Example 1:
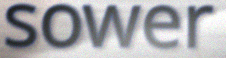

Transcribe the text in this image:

sower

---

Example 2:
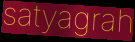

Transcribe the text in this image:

satyagrah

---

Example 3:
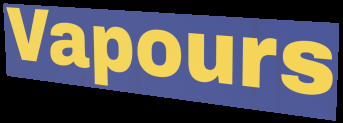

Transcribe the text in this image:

Vapours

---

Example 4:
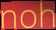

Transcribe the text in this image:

noh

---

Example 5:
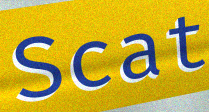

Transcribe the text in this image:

Scat